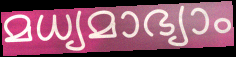
മധ്യമാഭ്യാം